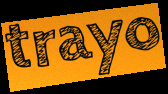
trayo